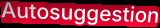
Autosuggestion